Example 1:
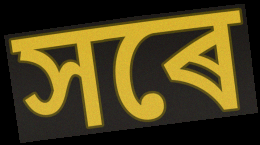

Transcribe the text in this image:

সৰে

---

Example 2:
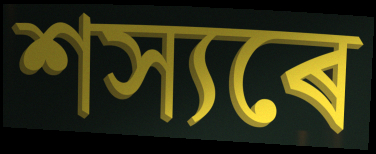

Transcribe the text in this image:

শস্যৰে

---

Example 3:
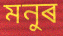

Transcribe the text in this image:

মনুৰ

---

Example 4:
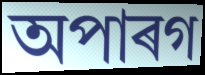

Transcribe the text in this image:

অপাৰগ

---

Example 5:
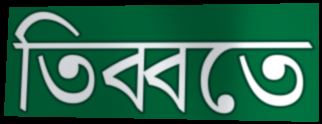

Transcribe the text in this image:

তিব্বতে